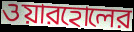
ওয়ারহোলের